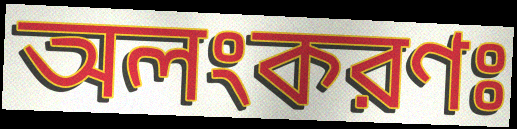
অলংকরণঃ